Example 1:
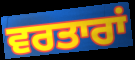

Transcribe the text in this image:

ਵਰਤਾਰਾਂ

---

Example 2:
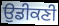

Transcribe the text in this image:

ਉਡੀਕਣੀ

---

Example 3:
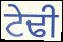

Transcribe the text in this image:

ਟੇਢੀ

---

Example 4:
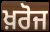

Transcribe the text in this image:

ਖ਼ਰੋਜ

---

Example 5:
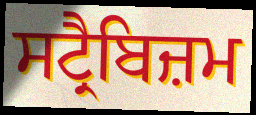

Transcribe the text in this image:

ਸਟ੍ਰੈਬਿਜ਼ਮ